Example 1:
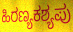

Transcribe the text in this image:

ಹಿರಣ್ಯಕಶ್ಯಪು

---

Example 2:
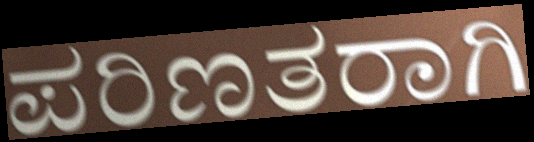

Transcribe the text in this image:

ಪರಿಣತರಾಗಿ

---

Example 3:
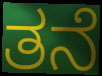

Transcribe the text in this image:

ತನೆ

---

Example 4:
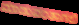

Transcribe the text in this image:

ಮಾಡುವಂತಾಗಲಿ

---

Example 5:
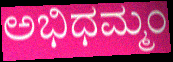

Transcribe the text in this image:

ಅಭಿಧಮ್ಮಂ